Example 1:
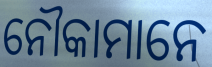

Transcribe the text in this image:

ନୌକାମାନେ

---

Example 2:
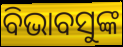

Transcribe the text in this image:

ବିଭାବସୁଙ୍କ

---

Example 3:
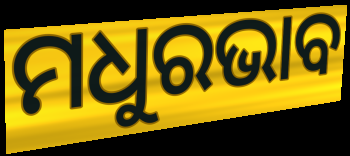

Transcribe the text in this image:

ମଧୁରଭାବ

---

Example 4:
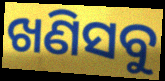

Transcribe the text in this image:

ଖଣିସବୁ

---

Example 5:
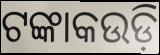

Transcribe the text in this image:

ଟଙ୍କାକଉଡ଼ି